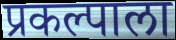
प्रकल्पाला